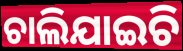
ଚାଲିଯାଇଚି